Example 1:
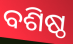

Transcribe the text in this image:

ବଶିଷ୍ଠ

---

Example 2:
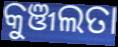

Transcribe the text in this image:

କୁଞ୍ଜଲତା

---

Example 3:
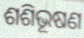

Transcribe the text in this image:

ଶଶିଭୂଷଣ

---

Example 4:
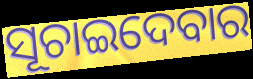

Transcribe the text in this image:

ସୂଚାଇଦେବାର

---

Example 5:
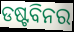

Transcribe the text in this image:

ଡଷ୍ଟବିନର